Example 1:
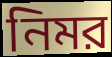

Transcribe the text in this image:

নিমর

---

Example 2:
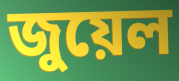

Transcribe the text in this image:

জুয়েল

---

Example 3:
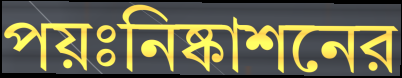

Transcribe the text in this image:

পয়ঃনিষ্কাশনের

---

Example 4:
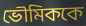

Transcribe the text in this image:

ভৌমিককে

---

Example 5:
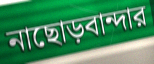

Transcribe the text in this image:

নাছোড়বান্দার